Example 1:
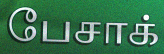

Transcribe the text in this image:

பேசாக்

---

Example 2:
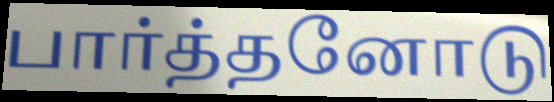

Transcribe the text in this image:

பார்த்தனோடு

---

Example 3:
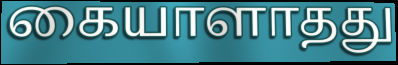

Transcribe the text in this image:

கையாளாதது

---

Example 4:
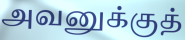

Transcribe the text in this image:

அவனுக்குத்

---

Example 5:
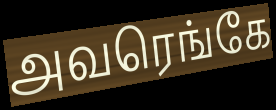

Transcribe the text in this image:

அவரெங்கே